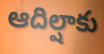
ఆదిల్షాకు